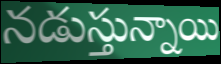
నడుస్తున్నాయి